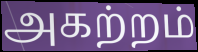
அகற்றம்